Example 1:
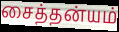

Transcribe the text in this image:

சைத்தன்யம்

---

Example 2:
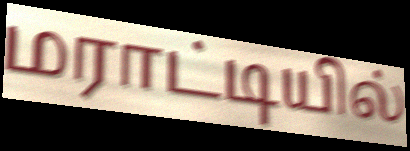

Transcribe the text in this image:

மராட்டியில்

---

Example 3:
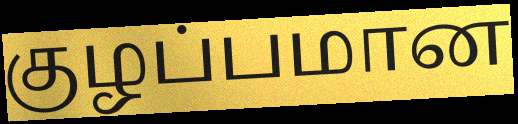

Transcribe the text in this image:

குழப்பமான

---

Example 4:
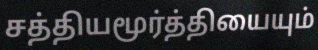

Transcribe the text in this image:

சத்தியமூர்த்தியையும்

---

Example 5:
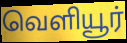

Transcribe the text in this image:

வெளியூர்